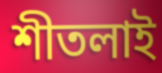
শীতলাই